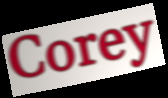
Corey